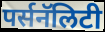
पर्सनॅलिटी